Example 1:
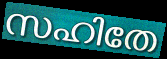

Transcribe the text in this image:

സഹിതേ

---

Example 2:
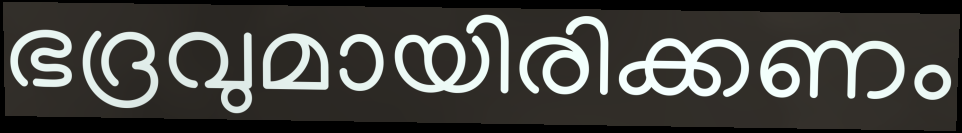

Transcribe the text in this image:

ഭദ്രവുമായിരിക്കണം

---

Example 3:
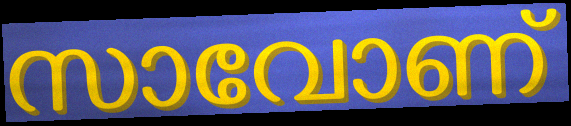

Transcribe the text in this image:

സാവോണ്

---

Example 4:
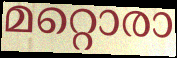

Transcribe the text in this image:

മറ്റൊരാ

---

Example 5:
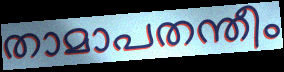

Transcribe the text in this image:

താമാപതന്തീം